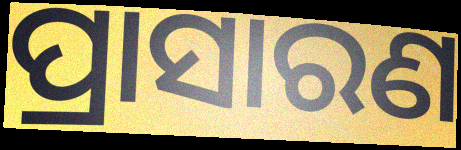
ପ୍ରାସାରଣ